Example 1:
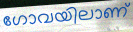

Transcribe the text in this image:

ഗോവയിലാണ്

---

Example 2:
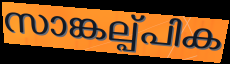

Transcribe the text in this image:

സാങ്കല്പ്പിക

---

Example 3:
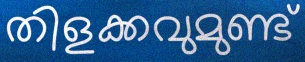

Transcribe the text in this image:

തിളക്കവുമുണ്ട്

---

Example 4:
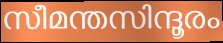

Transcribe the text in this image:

സീമന്തസിന്ദൂരം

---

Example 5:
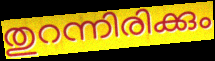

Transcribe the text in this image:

തുറന്നിരിക്കും